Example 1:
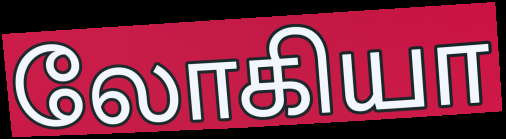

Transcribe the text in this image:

லோகியா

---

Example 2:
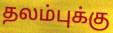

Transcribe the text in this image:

தலம்புக்கு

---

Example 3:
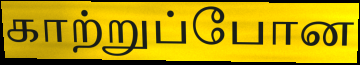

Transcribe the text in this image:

காற்றுப்போன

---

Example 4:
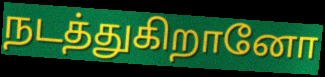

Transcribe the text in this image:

நடத்துகிறானோ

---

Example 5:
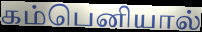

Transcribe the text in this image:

கம்பெனியால்